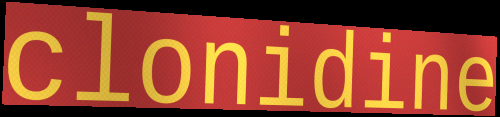
clonidine